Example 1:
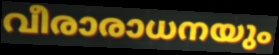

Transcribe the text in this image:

വീരാരാധനയും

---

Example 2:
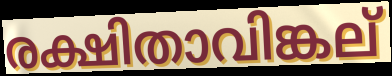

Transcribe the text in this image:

രക്ഷിതാവിങ്കല്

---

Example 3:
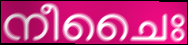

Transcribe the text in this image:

നീചൈഃ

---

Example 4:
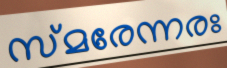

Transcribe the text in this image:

സ്മരേന്നരഃ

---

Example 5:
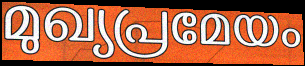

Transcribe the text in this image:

മുഖ്യപ്രമേയം